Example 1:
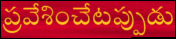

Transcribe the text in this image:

ప్రవేశించేటప్పుడు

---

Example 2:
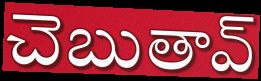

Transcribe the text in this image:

చెబుతావ్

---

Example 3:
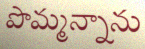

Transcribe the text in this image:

పొమ్మన్నాను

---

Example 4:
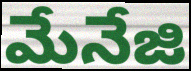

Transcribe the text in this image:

మేనేజి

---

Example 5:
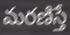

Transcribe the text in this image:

మరణిస్తే